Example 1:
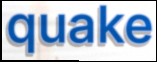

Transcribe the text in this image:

quake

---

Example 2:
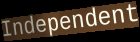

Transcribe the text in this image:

Independent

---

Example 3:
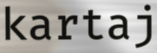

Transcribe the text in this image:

kartaj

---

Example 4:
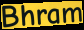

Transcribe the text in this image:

Bhram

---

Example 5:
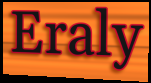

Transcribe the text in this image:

Eraly